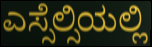
ಎಸ್ಸೆಲ್ಸಿಯಲ್ಲಿ